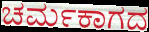
ಚರ್ಮಕಾಗದ